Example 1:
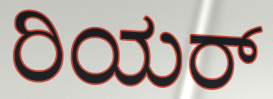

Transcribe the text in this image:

ರಿಯರ್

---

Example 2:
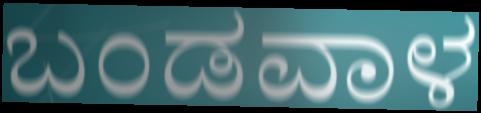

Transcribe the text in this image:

ಬಂಡವಾಳ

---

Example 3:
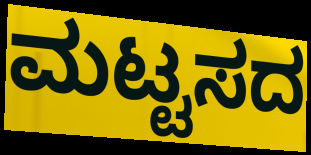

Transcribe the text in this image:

ಮಟ್ಟಸದ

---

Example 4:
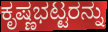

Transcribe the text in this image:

ಕೃಷ್ಣಭಟ್ಟರನ್ನು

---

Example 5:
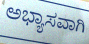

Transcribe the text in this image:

ಅಭ್ಯಾಸವಾಗಿ